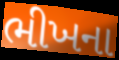
ભીખના